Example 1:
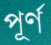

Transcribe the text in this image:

পূৰ্ণ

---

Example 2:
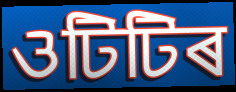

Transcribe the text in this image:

ওটিটিৰ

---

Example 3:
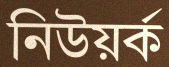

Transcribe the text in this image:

নিউয়ৰ্ক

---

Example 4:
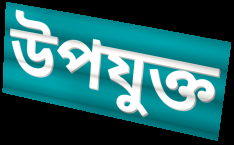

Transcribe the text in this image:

উপযুক্ত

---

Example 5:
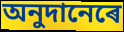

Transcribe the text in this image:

অনুদানেৰে